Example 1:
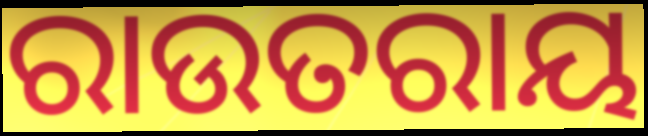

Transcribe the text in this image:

ରାଉତରାୟ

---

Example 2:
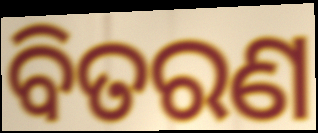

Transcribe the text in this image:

ବିତରଣ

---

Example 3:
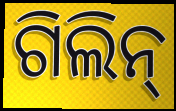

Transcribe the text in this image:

ଗିଲିନ୍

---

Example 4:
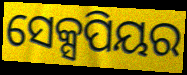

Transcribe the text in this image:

ସେକ୍ସପିୟର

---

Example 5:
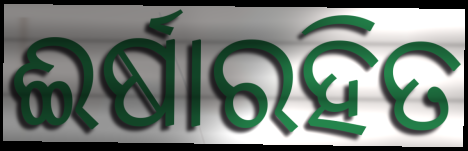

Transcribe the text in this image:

ଈର୍ଷାରହିତ